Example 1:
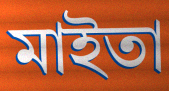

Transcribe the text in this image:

মাইতা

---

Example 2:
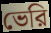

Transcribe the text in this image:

ভেরি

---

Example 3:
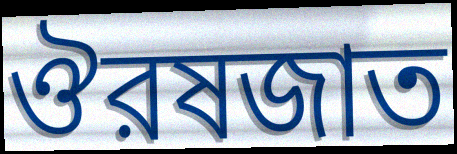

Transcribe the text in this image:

ঔরষজাত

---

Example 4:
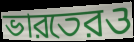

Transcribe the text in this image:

ভারতেরও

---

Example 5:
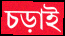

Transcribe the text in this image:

চড়াই